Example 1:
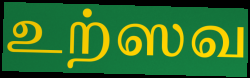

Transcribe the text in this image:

உற்ஸவ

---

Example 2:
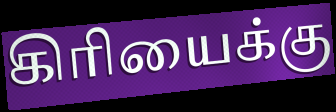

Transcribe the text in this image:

கிரியைக்கு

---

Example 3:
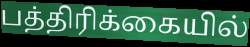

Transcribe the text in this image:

பத்திரிக்கையில்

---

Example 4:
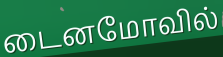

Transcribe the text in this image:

டைனமோவில்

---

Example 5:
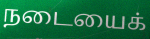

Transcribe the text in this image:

நடையைக்